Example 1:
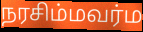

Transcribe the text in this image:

நரசிம்மவர்ம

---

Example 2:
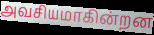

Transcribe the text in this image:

அவசியமாகின்றன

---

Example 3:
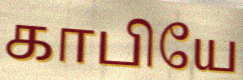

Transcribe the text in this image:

காபியே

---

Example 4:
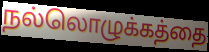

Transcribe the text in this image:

நல்லொழுக்கத்தை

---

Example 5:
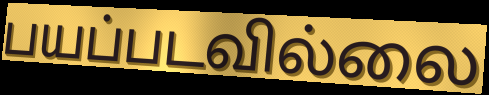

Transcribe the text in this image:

பயப்படவில்லை